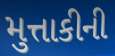
મુત્તાકીની